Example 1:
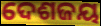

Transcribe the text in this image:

ଦେଶଜୟ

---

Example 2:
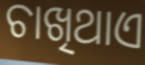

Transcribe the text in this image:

ଚାଖିଥାଏ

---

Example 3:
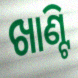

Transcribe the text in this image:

ଖାଣ୍ଟି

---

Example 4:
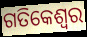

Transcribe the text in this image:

ଗତିକେଶ୍ବର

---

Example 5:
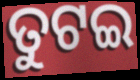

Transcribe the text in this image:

ତୁଟଇ